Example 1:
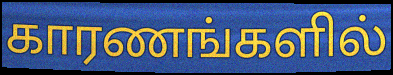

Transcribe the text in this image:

காரணங்களில்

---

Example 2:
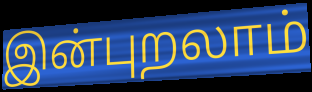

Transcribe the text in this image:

இன்புறலாம்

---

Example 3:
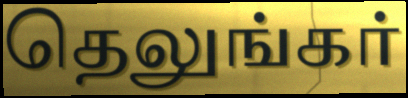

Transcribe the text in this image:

தெலுங்கர்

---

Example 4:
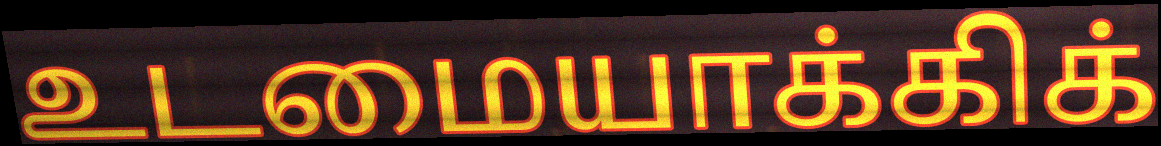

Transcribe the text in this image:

உடமையாக்கிக்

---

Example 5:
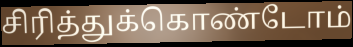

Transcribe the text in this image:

சிரித்துக்கொண்டோம்